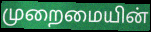
முறைமையின்